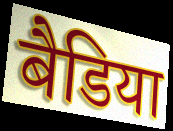
बैडिया